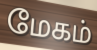
மேகம்